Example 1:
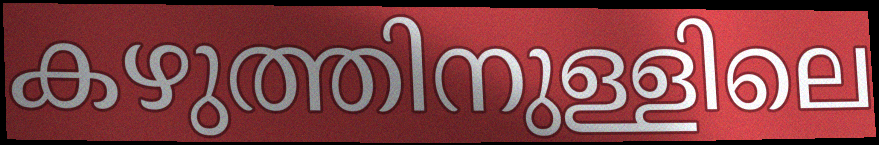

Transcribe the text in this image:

കഴുത്തിനുള്ളിലെ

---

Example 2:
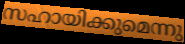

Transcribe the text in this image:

സഹായിക്കുമെന്നു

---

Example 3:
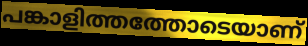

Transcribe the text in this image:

പങ്കാളിത്തത്തോടെയാണ്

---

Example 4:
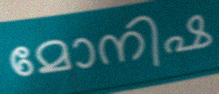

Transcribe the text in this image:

മോനിഷ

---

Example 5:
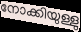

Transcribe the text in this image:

നോക്കിയുള്ളു